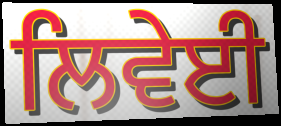
ਲਿਵੇਈ